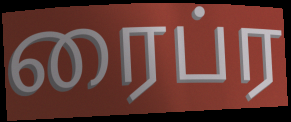
ரைப்ர